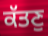
ਕੱਤਣੁ